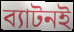
ব্যাটনই